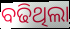
ବଢିଥିଲା